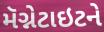
મૅગ્નેટાઇટને